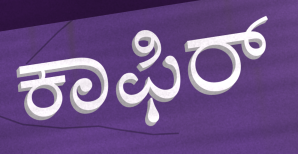
ಕಾಫಿರ್